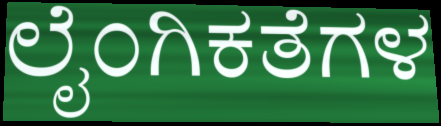
ಲೈಂಗಿಕತೆಗಳ